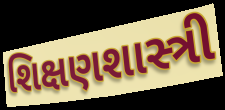
શિક્ષણશાસ્ત્રી